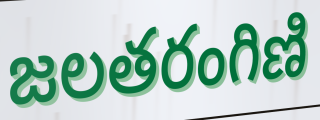
జలతరంగిణి